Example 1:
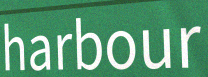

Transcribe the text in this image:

harbour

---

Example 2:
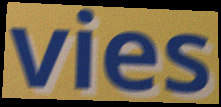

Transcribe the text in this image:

vies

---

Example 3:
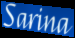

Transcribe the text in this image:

Sarina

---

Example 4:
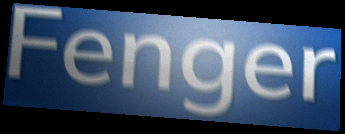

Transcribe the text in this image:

Fenger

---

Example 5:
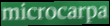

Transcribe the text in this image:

microcarpa